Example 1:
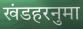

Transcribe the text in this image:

खंडहरनुमा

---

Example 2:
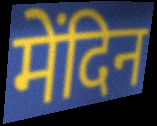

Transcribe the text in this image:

मेंदिन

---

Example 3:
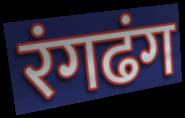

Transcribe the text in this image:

रंगढंग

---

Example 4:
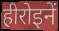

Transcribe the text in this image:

हीरोइनें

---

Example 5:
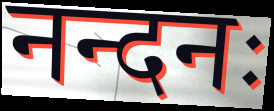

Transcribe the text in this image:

नन्दनः